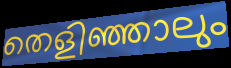
തെളിഞ്ഞാലും